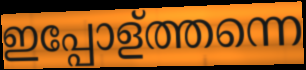
ഇപ്പോള്ത്തന്നെ